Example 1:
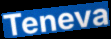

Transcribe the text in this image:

Teneva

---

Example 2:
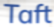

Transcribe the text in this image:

Taft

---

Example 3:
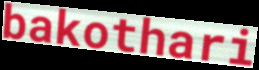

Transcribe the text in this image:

bakothari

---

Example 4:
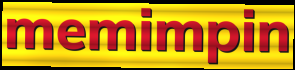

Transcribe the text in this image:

memimpin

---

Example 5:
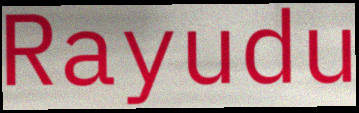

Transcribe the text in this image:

Rayudu